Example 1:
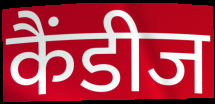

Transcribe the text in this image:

कैंडीज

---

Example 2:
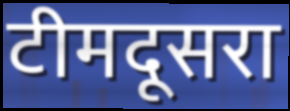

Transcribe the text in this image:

टीमदूसरा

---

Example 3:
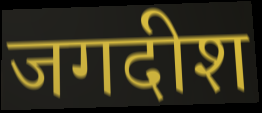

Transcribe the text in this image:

जगदीश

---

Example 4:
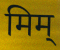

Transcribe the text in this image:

मिम्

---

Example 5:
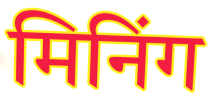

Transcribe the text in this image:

मिनिंग